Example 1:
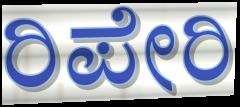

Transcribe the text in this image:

ರಿಪೇರಿ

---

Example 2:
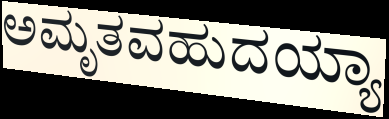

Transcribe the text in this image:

ಅಮೃತವಹುದಯ್ಯಾ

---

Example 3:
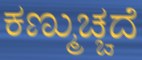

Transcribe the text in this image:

ಕಣ್ಮುಚ್ಚದೆ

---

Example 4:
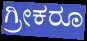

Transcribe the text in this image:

ಗ್ರೀಕರೂ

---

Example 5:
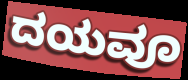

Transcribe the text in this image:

ದಯವೂ